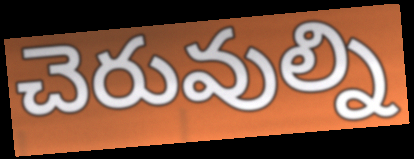
చెరువుల్ని